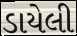
ડાયેલી